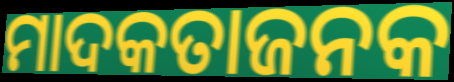
ମାଦକତାଜନକ